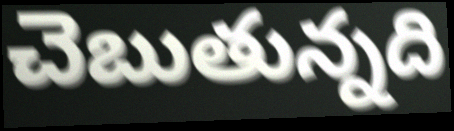
చెబుతున్నది